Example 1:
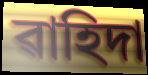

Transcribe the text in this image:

ৱাহিদা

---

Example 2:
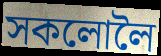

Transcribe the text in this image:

সকলোলৈ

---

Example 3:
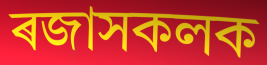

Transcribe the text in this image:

ৰজাসকলক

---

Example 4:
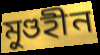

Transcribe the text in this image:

মুণ্ডহীন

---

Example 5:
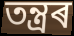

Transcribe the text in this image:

তন্ত্ৰৰ